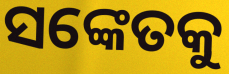
ସଙ୍କେତକୁ